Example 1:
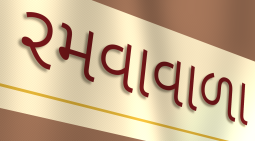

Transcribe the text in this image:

રમવાવાળા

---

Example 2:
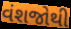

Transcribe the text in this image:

વંશજોથી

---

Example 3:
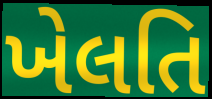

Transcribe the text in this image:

ખેલતિ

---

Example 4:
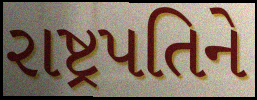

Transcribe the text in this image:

રાષ્ટ્રપતિને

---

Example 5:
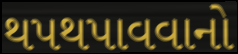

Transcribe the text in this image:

થપથપાવવાનો